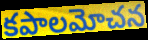
కపాలమోచన